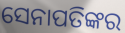
ସେନାପତିଙ୍କର